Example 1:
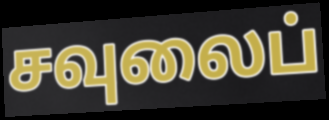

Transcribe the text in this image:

சவுலைப்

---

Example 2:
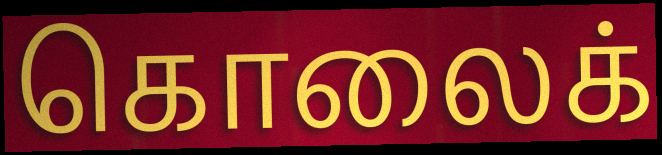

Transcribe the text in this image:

கொலைக்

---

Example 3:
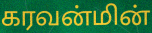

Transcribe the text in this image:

கரவன்மின்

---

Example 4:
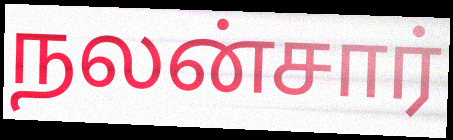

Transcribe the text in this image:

நலன்சார்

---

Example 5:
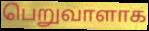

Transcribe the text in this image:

பெறுவாளாக